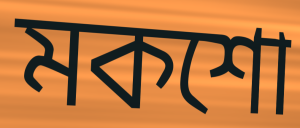
মকশো